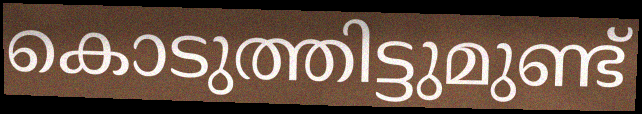
കൊടുത്തിട്ടുമുണ്ട്